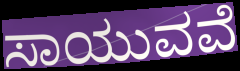
ಸಾಯುವವೆ